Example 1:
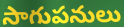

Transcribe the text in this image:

సాగుపనులు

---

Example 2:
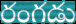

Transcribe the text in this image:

రంగడు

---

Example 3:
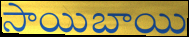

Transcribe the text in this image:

సాయిబాయి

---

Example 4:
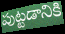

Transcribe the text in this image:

పుట్టడానికి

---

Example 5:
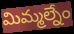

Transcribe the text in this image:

మిమ్మల్నేం